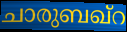
ചാരുബഖ്റ